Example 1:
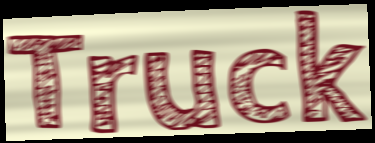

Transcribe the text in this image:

Truck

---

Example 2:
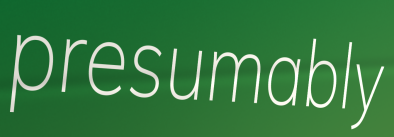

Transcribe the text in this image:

presumably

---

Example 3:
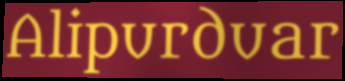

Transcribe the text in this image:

Alipurduar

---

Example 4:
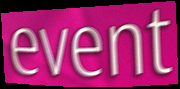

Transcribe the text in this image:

event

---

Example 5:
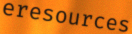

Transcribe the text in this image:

eresources